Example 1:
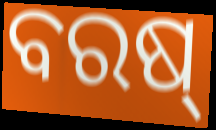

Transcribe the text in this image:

ବରଷ୍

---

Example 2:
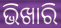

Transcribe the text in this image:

ଭିଖାରି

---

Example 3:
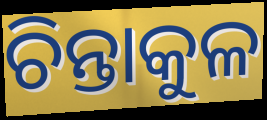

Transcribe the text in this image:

ଚିନ୍ତାକୁଳ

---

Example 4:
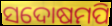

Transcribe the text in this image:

ସଦୋଷମପି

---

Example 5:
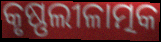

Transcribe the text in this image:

କୃଷ୍ଣଲୀଳାତ୍ମକ